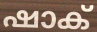
ഷാക്